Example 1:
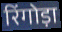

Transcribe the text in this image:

रिंगोड़ा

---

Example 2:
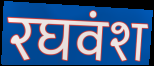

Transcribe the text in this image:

रघवंश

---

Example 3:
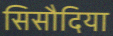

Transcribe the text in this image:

सिसौदिया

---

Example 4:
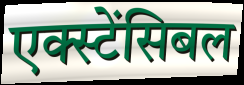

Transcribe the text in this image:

एक्स्टेंसिबल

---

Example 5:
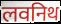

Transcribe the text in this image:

लवनिथ